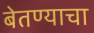
बेतण्याचा